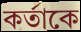
কর্তাকে